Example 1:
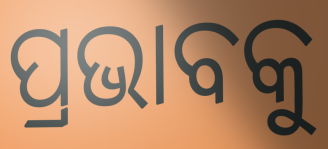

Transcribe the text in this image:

ପ୍ରଭାବକୁ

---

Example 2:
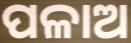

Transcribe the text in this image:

ପଳାଅ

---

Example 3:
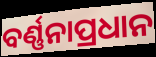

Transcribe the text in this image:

ବର୍ଣ୍ଣନାପ୍ରଧାନ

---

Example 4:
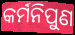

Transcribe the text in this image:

କର୍ମନିପୁଣ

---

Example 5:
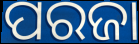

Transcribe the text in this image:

ପରଜା